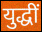
युद्धीं